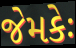
જેમકેઃ